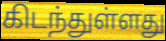
கிடந்துள்ளது